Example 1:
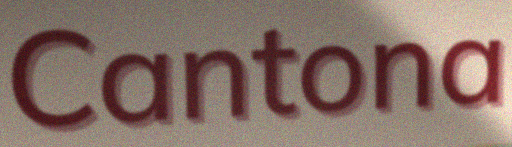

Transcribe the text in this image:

Cantona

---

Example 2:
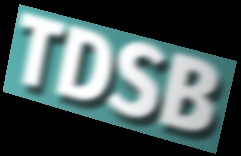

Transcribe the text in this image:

TDSB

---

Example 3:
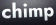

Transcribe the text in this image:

chimp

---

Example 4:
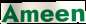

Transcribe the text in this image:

Ameen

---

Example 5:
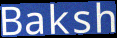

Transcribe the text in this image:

Baksh